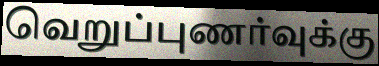
வெறுப்புணர்வுக்கு